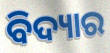
ବିଦ୍ୟାର